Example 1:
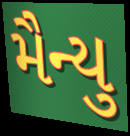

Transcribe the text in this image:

મૈન્યુ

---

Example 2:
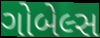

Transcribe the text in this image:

ગોબેલ્સ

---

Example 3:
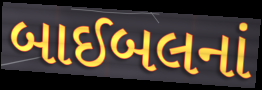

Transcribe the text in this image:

બાઈબલનાં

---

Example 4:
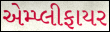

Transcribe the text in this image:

એમ્પ્લીફાયર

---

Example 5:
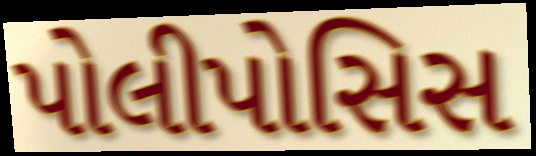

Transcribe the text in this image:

પોલીપોસિસ